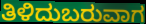
ತಿಳಿದುಬರುವಾಗ